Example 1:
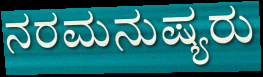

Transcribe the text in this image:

ನರಮನುಷ್ಯರು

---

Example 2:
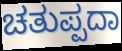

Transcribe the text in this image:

ಚತುಪ್ಪದಾ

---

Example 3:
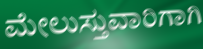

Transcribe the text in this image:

ಮೇಲುಸ್ತುವಾರಿಗಾಗಿ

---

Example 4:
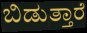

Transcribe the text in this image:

ಬಿಡುತ್ತಾರೆ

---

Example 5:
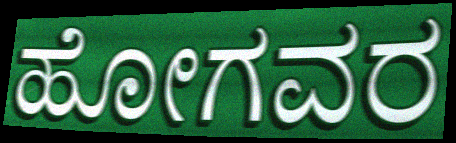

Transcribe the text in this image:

ಹೋಗವರ